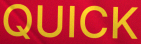
QUICK